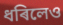
ধৰিলেও